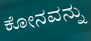
ಕೋನವನ್ನು